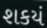
શકયં